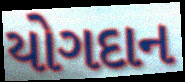
યોગદાન